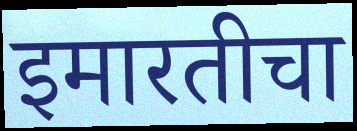
इमारतीचा